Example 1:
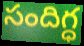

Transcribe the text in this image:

సందిగ్ధ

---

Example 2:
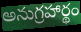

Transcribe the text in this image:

అనుగ్రహార్థం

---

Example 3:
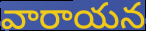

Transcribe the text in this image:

వారాయన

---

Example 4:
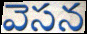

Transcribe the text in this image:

వెసన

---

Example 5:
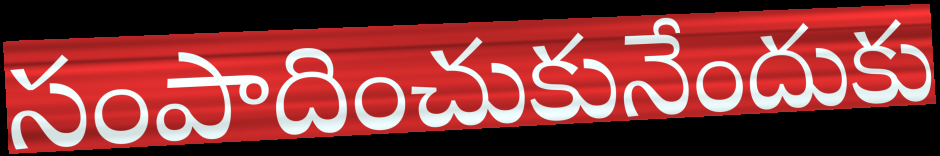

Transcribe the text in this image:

సంపాదించుకునేందుకు